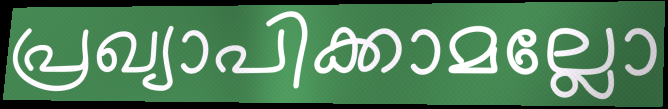
പ്രഖ്യാപിക്കാമല്ലോ